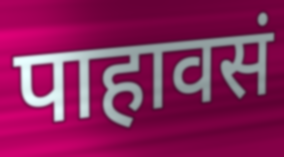
पाहावसं